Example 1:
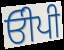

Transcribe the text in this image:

ਓੀਪੀ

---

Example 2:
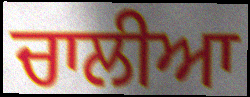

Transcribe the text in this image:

ਚਾਲੀਆ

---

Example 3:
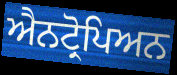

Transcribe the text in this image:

ਐਨਟ੍ਰੋਪਿਅਨ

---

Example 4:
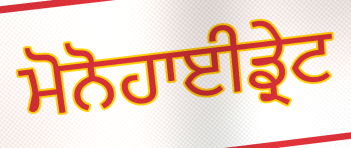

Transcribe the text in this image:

ਮੋਨੋਹਾਈਡ੍ਰੇਟ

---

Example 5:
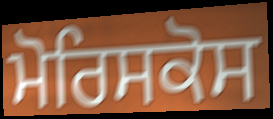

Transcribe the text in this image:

ਮੋਰਿਸਕੋਸ